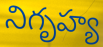
నిగృహ్య